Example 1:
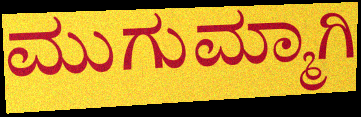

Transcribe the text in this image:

ಮುಗುಮ್ಮಾಗಿ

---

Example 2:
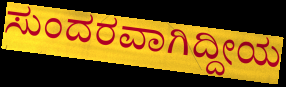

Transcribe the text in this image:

ಸುಂದರವಾಗಿದ್ದೀಯ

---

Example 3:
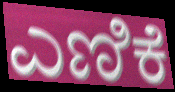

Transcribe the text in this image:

ಎಣಿಕೆ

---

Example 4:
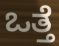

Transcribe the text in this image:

ಒತ್ತೆ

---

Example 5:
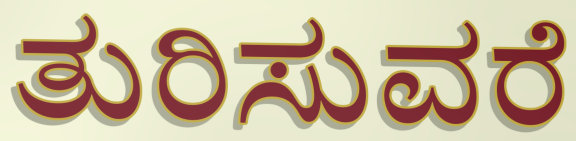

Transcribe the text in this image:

ತುರಿಸುವರೆ